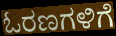
ಓರಣಗಳಿಗೆ